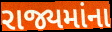
રાજ્યમાંના